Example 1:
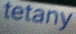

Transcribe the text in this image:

tetany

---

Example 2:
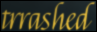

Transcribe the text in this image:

trrashed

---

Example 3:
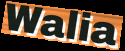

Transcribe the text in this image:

Walia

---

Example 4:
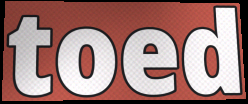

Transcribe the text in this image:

toed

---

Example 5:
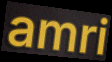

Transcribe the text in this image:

amri